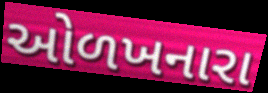
ઓળખનારા